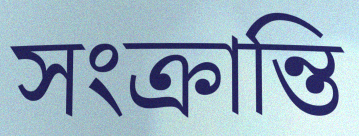
সংক্ৰান্তি